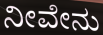
ನೀವೇನು